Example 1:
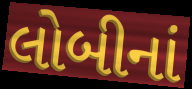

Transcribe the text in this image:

લોબીનાં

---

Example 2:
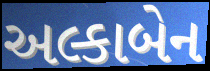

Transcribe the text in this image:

અલ્કાબેન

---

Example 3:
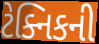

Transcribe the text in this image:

ટેક્નિકની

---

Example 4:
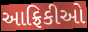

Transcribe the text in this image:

આફ્રિકીઓ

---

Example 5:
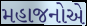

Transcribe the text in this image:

મહાજનોએ